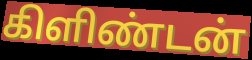
கிளிண்டன்